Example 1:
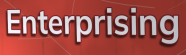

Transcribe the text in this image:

Enterprising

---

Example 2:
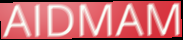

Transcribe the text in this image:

AIDMAM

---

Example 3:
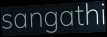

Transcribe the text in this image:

sangathi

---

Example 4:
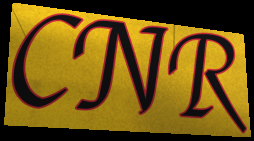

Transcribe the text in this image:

CNR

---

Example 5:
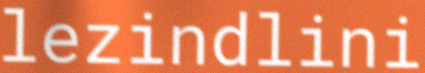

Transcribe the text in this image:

lezindlini